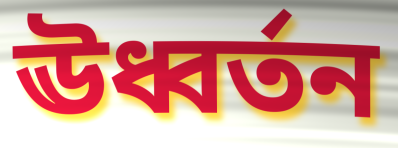
ঊধ্বর্তন